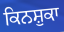
ਕਿਨਸ਼ੁਕਾ